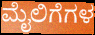
ಮೈಲಿಗೆಗಳ